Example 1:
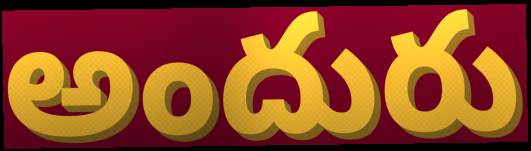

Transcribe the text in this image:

అందురు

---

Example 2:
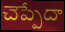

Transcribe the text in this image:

చెప్పేదా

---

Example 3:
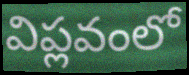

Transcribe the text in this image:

విప్లవంలో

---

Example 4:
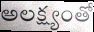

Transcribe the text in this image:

అలక్ష్యంతో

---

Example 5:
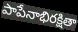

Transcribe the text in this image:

పాపేనాభిరక్షితా